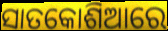
ସାତକୋଶିଆରେ